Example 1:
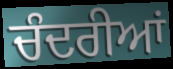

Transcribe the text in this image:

ਚੰਦਰੀਆਂ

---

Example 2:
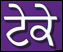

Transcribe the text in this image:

ਟੇਕੇ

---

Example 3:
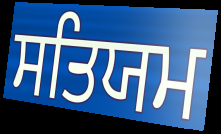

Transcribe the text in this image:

ਸਤਿਯਮ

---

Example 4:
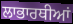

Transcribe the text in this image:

ਲਾਭਾਰਥੀਆਂ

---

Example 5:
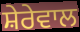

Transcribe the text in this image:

ਸ਼ੇਰੇਵਾਲ